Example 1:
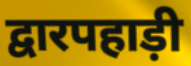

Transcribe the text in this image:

द्वारपहाड़ी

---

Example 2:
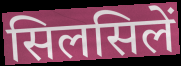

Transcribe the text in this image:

सिलसिलें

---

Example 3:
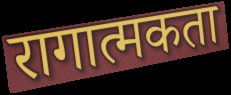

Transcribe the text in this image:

रागात्मकता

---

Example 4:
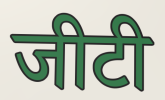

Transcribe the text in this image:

जीटी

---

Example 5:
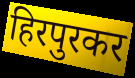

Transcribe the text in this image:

हिरपुरकर